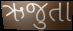
ઋજુતા